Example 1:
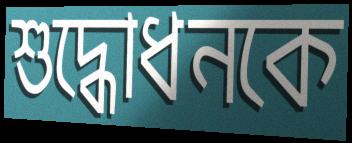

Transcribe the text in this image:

শুদ্ধোধনকে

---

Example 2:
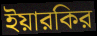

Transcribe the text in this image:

ইয়ারকির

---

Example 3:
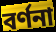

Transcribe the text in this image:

বর্ণনা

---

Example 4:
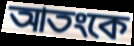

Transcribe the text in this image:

আতংকে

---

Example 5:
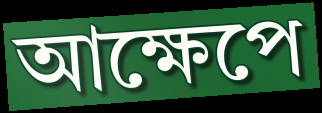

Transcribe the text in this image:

আক্ষেপে